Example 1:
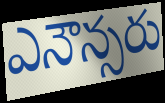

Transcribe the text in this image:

ఎనౌన్సరు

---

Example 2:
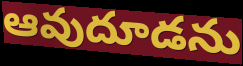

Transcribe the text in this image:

ఆవుదూడను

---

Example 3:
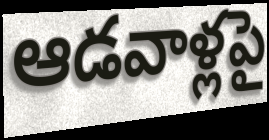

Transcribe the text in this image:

ఆడవాళ్లపై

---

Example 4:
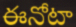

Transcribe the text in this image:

ఈనోటా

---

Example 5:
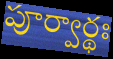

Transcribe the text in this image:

పూర్వార్థః